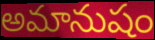
అమానుషం